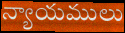
న్యాయములు